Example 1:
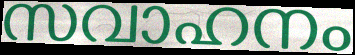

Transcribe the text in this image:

സവാഹനം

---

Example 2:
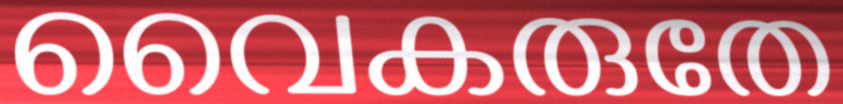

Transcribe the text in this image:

വൈകരുതേ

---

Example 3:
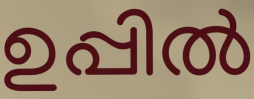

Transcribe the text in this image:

ഉപ്പിൽ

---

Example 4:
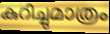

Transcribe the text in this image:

കുറിച്ചുമാത്രം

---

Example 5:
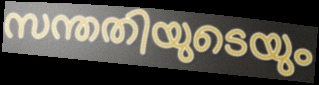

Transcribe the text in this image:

സന്തതിയുടെയും